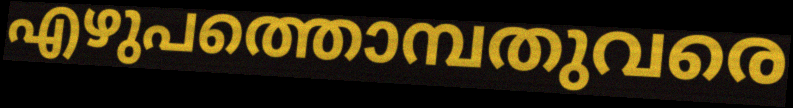
എഴുപത്തൊമ്പതുവരെ